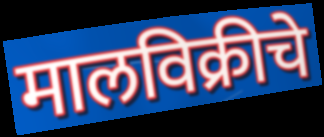
मालविक्रीचे